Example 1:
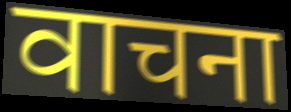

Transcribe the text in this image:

वाचना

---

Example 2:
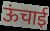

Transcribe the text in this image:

ऊंचाई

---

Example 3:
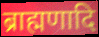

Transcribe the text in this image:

ब्राह्मणादि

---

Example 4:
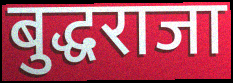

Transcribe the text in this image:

बुद्धराजा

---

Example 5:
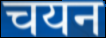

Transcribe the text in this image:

चयन